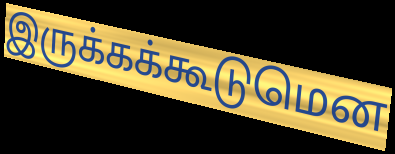
இருக்கக்கூடுமென